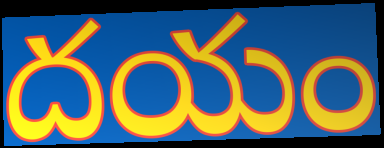
దయం